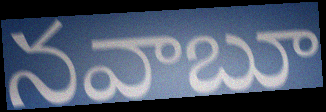
నవాబూ